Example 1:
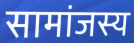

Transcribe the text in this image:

सामांजस्य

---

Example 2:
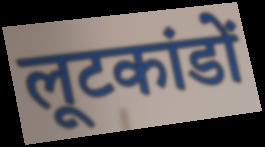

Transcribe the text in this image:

लूटकांडों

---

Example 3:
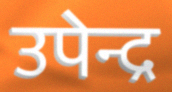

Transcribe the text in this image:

उपेन्द्र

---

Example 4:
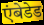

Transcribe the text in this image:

एंबेडेड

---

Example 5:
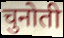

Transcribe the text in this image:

चुनोती